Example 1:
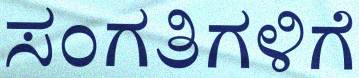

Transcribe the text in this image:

ಸಂಗತಿಗಳಿಗೆ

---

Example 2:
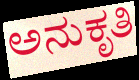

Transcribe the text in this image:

ಅನುಕೃತಿ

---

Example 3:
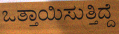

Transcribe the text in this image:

ಒತ್ತಾಯಿಸುತ್ತಿದ್ದೆ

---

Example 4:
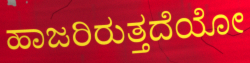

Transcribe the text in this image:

ಹಾಜರಿರುತ್ತದೆಯೋ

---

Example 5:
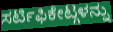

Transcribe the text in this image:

ಸರ್ಟಿಫಿಕೇಟ್ಗಳನ್ನು